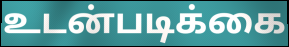
உடன்படிக்கை